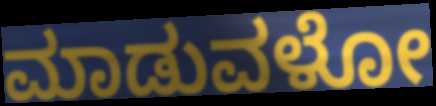
ಮಾಡುವಳೋ